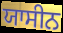
ਯਾਸੀਨ